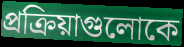
প্রক্রিয়াগুলোকে